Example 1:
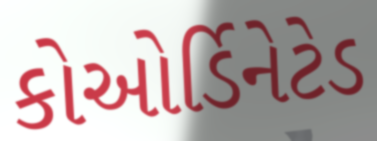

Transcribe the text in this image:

કોઓર્ડિનેટેડ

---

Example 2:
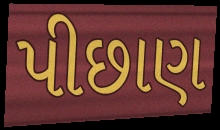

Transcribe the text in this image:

પીછાણ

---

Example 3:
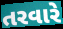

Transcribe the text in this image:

તરવારે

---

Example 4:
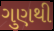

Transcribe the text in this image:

ગુણથી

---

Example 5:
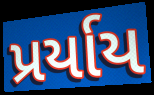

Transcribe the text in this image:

પ્રર્યાય